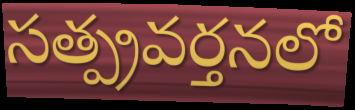
సత్ప్రవర్తనలో